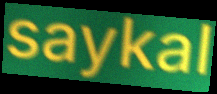
saykal